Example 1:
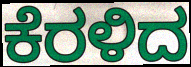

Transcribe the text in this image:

ಕೆರಳಿದ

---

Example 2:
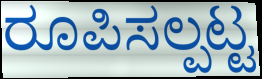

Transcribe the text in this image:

ರೂಪಿಸಲ್ಪಟ್ಟ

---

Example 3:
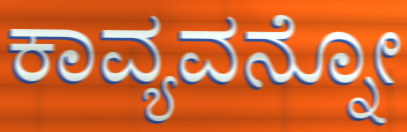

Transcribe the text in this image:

ಕಾವ್ಯವನ್ನೋ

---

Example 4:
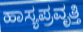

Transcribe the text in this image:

ಹಾಸ್ಯಪ್ರವೃತ್ತಿ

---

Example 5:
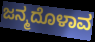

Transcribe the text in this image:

ಜನ್ಮದೊಳಾವ